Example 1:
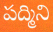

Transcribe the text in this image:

పద్మిని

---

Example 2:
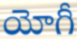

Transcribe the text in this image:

యోగీ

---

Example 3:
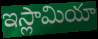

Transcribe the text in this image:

ఇస్లామియా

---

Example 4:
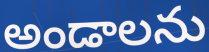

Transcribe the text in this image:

అండాలను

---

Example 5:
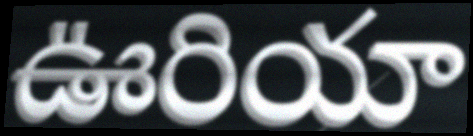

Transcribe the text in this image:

ఊరియా